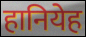
हानियेह